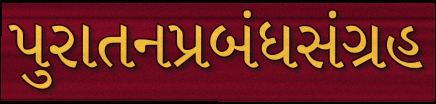
પુરાતનપ્રબંધસંગ્રહ